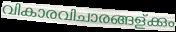
വികാരവിചാരങ്ങള്ക്കും